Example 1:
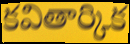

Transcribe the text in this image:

కవితార్కిక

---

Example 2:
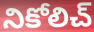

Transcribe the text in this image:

నికోలిచ్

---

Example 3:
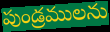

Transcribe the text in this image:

పుండ్రములను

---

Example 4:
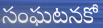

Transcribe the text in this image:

సంఘటనకో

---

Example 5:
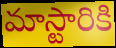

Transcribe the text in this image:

మాస్టారికి